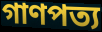
গাণপত্য